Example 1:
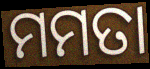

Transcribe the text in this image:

ମମତା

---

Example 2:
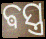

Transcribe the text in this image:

ଵସ୍ତ୍ର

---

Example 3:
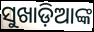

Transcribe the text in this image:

ସୁଖାଡ଼ିଆଙ୍କ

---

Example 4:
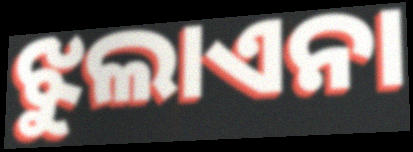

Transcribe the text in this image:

ଝୁଲାଏନା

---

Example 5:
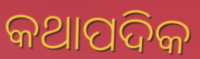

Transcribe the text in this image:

କଥାପଦିକ